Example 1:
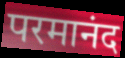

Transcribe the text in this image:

परमानंद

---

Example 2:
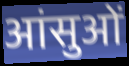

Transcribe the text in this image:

आंसुओं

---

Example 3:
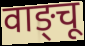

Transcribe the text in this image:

वाङ्चू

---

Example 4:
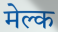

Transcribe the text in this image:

मेल्क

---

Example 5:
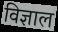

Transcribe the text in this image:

विज्ञाल